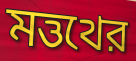
মত্তথের